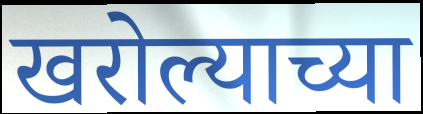
खरोल्याच्या